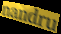
nandru